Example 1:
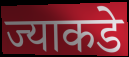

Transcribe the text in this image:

ज्याकडे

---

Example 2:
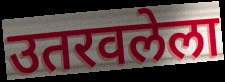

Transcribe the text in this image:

उतरवलेला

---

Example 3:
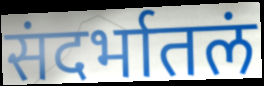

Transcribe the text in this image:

संदर्भातलं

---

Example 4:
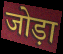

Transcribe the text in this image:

जोड़ा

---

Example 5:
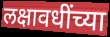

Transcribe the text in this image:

लक्षावधींच्या